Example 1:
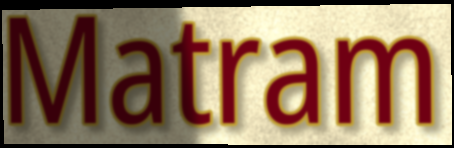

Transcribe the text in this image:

Matram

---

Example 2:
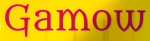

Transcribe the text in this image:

Gamow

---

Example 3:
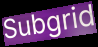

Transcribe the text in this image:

Subgrid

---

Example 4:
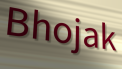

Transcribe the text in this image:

Bhojak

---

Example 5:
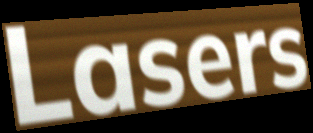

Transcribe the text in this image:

Lasers